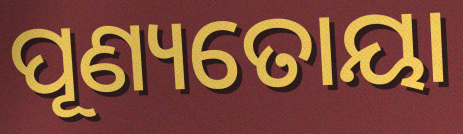
ପୂଣ୍ୟତୋୟା